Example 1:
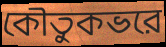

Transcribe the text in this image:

কৌতুকভরে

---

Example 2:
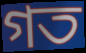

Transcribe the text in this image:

গত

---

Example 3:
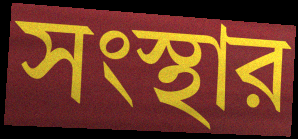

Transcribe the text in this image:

সংস্থার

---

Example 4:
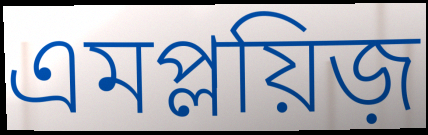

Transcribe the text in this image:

এমপ্লয়িজ়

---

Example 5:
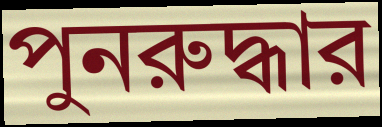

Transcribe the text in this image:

পুনরুদ্ধার